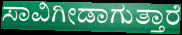
ಸಾವಿಗೀಡಾಗುತ್ತಾರೆ